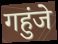
गहुंजे